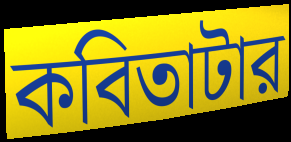
কবিতাটার